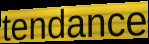
tendance